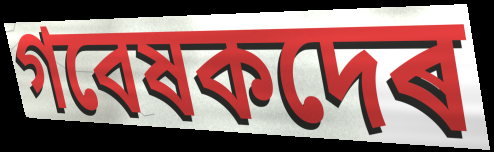
গবেষকদেৰ